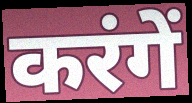
करंगें